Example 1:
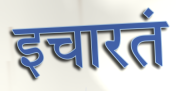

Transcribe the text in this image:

इचारतं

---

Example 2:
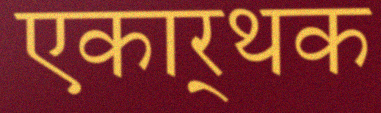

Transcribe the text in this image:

एकार्थक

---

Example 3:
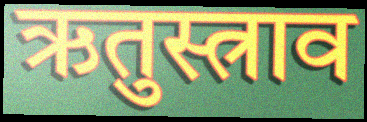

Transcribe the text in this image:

ऋतुस्त्राव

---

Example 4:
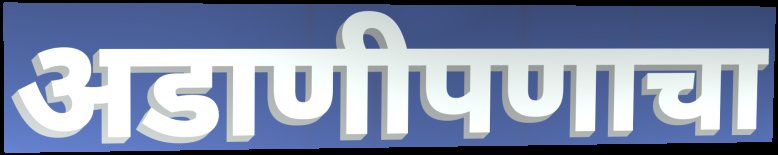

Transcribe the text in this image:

अडाणीपणाचा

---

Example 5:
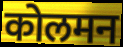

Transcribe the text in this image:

कोलमन